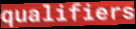
qualifiers